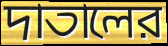
দাতালের